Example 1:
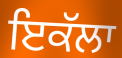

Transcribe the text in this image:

ਇਕੱਲਾ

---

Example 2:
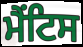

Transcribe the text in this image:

ਮੈਂਟਿਸ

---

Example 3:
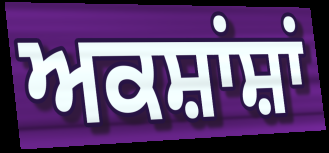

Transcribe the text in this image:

ਅਕਸ਼ਾਂਸ਼ਾਂ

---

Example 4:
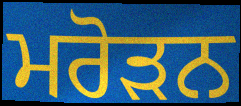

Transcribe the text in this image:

ਮਰੋੜਨ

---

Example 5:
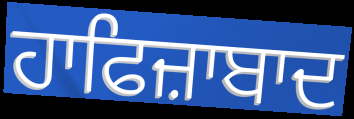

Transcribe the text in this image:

ਹਾਫਿਜ਼ਾਬਾਦ